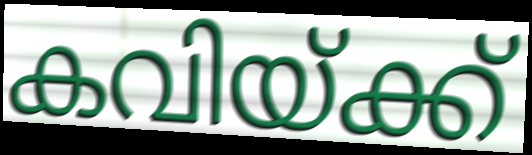
കവിയ്ക്ക്